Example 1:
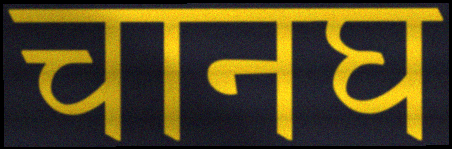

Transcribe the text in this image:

चानघ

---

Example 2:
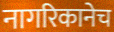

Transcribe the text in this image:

नागरिकानेच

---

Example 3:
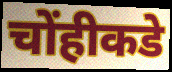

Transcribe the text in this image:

चोंहीकडे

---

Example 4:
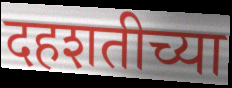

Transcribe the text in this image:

दहशतीच्या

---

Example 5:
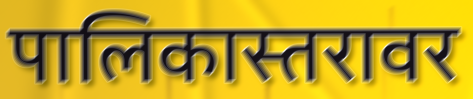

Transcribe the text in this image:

पालिकास्तरावर